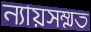
ন্যায়সম্মত